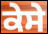
ਕੇਸੇ